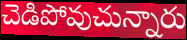
చెడిపోవుచున్నారు